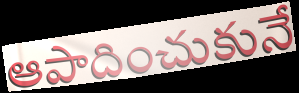
ఆపాదించుకునే